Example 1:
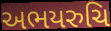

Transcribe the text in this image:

અભયરુચિ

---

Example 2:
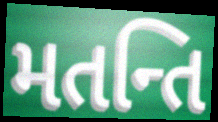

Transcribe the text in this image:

મતન્તિ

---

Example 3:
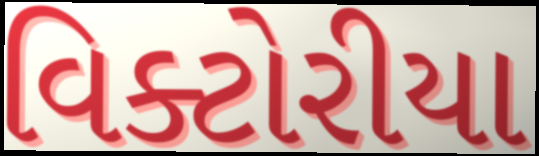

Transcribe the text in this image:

વિક્ટોરીયા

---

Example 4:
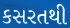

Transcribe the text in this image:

કસરતથી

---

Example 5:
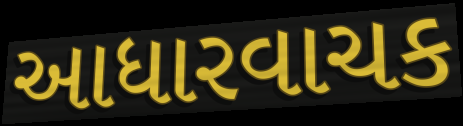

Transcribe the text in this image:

આધારવાચક